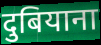
दुबियाना